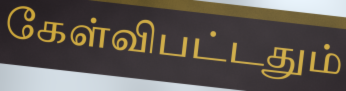
கேள்விபட்டதும்